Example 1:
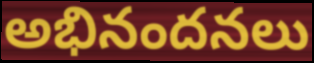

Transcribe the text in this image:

అభినందనలు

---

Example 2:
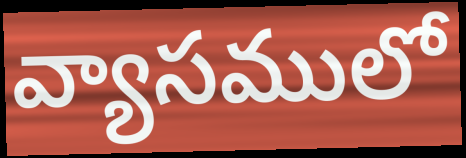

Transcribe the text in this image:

వ్యాసములో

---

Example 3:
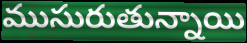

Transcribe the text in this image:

ముసురుతున్నాయి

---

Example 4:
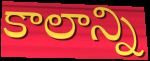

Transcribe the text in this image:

కాలాన్ని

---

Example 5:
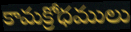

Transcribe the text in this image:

కామక్రోధములు